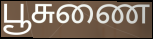
பூசுணை